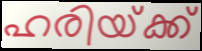
ഹരിയ്‌ക്ക്